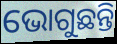
ଭୋଗୁଛନ୍ତି